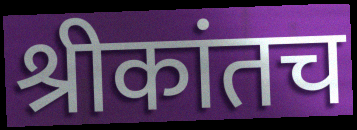
श्रीकांतच